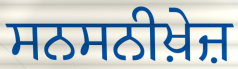
ਸਨਸਨੀਖ਼ੇਜ਼